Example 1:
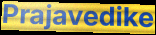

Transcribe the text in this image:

Prajavedike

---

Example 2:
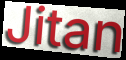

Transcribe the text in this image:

Jitan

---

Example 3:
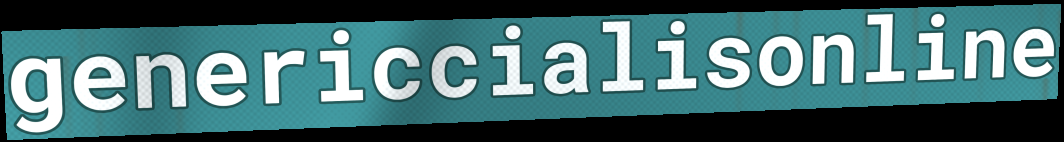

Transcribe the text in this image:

genericcialisonline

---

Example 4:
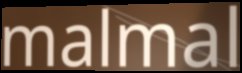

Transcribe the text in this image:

malmal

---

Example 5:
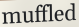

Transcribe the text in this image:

muffled